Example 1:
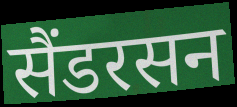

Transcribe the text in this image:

सैंडरसन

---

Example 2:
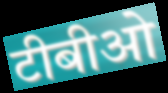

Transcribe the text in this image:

टीबीओ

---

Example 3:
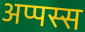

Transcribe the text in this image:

अप्पस्स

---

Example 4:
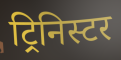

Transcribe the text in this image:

ट्रिनिस्टर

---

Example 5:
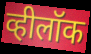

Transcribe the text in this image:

व्हीलॉक